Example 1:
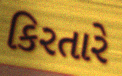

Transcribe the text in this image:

કિરતારે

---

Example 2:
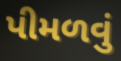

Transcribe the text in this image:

પીમળવું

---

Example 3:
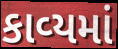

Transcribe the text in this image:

કાવ્‍યમાં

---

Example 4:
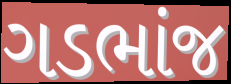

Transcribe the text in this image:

ગડભાંજ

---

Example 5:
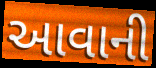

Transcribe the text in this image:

આવાની